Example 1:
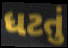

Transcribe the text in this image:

ધટતું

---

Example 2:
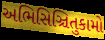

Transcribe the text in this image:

અભિસિઞ્ચિતુકામો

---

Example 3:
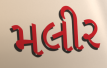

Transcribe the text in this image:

મલીર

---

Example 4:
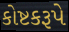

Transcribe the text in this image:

કોષ્ટકરૂપે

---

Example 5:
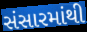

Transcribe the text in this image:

સંસારમાંથી